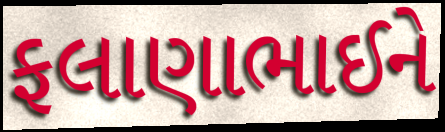
ફલાણાભાઈને